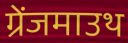
ग्रेंजमाउथ